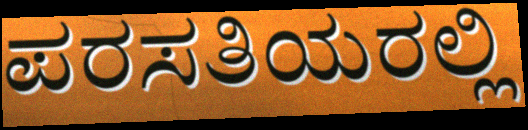
ಪರಸತಿಯರಲ್ಲಿ